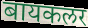
बायकलर